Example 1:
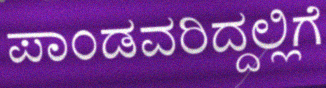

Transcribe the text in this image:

ಪಾಂಡವರಿದ್ದಲ್ಲಿಗೆ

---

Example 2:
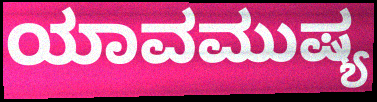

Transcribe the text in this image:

ಯಾವಮುಷ್ಯ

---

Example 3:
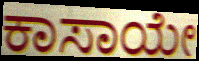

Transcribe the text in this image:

ಕಾಸಾಯೇ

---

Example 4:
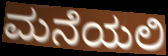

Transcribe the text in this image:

ಮನೆಯಲಿ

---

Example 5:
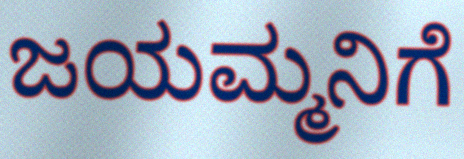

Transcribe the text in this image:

ಜಯಮ್ಮನಿಗೆ